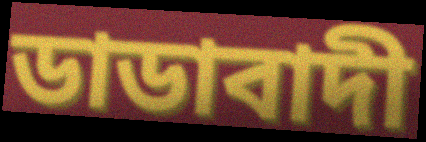
ডাডাবাদী